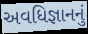
અવધિજ્ઞાનનું